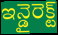
ఇన్డైరెక్ట్